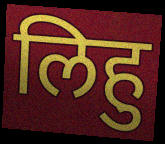
लिहु